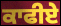
ਕਾਫੀਏ